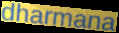
dharmana